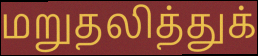
மறுதலித்துக்